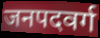
जनपदवर्ग